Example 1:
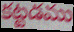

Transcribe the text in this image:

కట్టడము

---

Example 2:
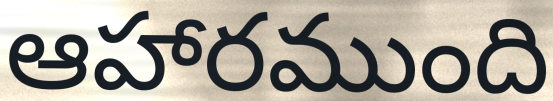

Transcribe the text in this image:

ఆహారముంది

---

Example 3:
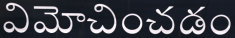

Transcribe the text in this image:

విమోచించడం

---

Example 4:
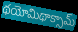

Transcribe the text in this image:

థయోమిథాక్సామ్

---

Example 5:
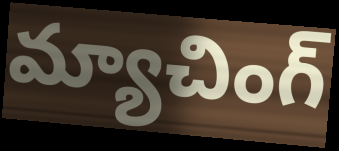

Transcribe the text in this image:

మ్యాచింగ్